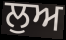
ਲੁਅ